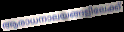
ആരാധനാലയങ്ങളിലേക്ക്